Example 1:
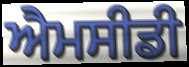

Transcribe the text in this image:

ਐਮਸੀਡੀ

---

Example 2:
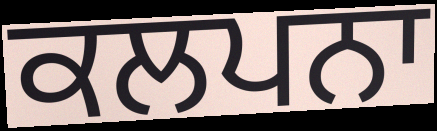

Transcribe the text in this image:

ਕਲਪਨਾ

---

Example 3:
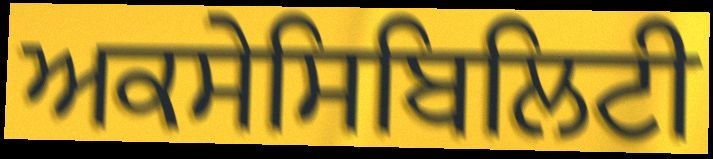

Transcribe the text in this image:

ਅਕਸੇਸਿਬਿਲਿਟੀ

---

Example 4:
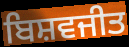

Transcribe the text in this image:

ਬਿਸ਼ਵਜੀਤ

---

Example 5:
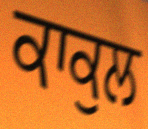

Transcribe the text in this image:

ਕਾਕੁਲ